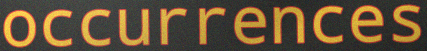
occurrences